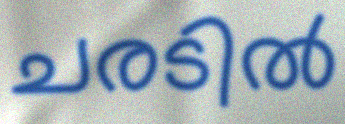
ചരടിൽ